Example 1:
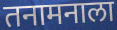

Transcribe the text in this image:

तनामनाला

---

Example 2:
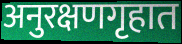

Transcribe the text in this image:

अनुरक्षणगृहात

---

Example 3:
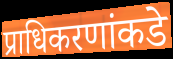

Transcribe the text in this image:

प्राधिकरणांकडे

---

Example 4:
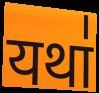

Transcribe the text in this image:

यथा॑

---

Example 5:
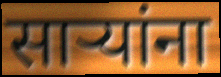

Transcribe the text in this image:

सार्‍यांना